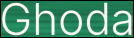
Ghoda